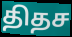
திதச